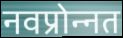
नवप्रोन्नत